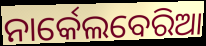
ନାର୍କେଲବେରିଆ